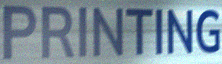
PRINTING